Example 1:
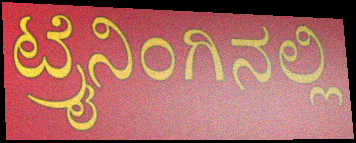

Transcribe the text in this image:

ಟ್ರೈನಿಂಗಿನಲ್ಲಿ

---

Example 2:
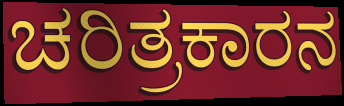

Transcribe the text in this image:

ಚರಿತ್ರಕಾರನ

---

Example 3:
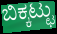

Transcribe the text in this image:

ಬಿಕ್ಕಟ್ಟು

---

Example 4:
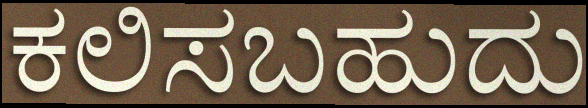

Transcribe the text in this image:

ಕಲಿಸಬಹುದು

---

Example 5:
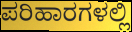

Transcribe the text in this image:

ಪರಿಹಾರಗಳಲ್ಲಿ